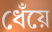
ধেঁয়ে